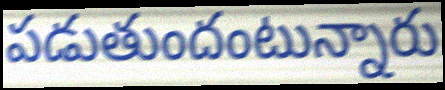
పడుతుందంటున్నారు